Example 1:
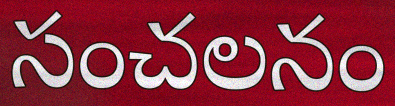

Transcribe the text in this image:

సంచలనం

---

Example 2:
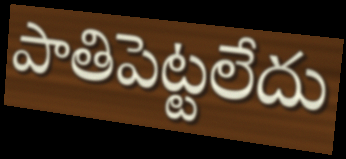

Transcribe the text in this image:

పాతిపెట్టలేదు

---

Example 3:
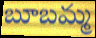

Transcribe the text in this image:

బూబమ్మ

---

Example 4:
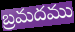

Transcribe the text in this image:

బ్రమదము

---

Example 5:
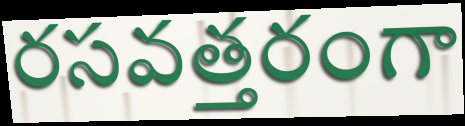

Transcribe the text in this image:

రసవత్తరంగా